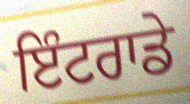
ਇੰਟਰਾਡੇ